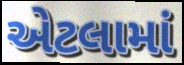
એટલામાં